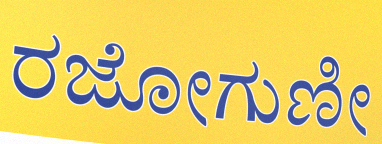
ರಜೋಗುಣೀ